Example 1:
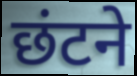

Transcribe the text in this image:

छंटने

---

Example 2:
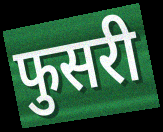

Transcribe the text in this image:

फुसरी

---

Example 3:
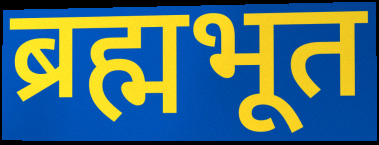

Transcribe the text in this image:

ब्रह्मभूत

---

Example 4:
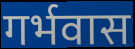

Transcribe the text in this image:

गर्भवास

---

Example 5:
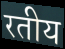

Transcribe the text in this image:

रतीय